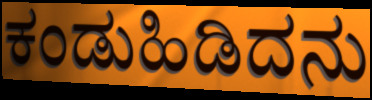
ಕಂಡುಹಿಡಿದನು